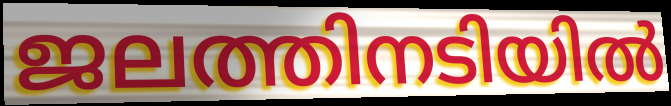
ജലത്തിനടിയിൽ